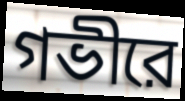
গভীরে